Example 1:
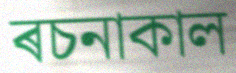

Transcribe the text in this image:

ৰচনাকাল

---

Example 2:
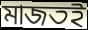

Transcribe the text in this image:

মাজতই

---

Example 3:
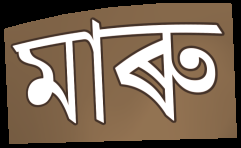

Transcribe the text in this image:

মাৰু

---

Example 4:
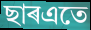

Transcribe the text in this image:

ছাৰএতে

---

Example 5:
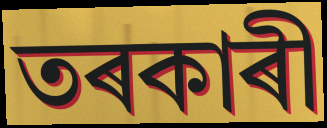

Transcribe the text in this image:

তৰকাৰী